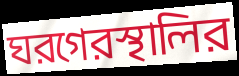
ঘরগেরস্থালির